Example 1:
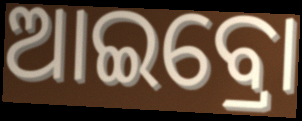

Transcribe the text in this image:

ଆଇବ୍ରୋ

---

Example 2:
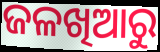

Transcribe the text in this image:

ଜଳଖିଆରୁ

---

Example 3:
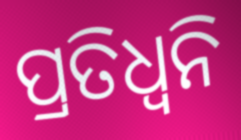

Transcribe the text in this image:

ପ୍ରତିଧ୍ବନି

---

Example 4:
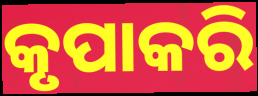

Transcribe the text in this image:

କୃପାକରି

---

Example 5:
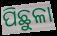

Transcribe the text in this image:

ପିଛୁଳା